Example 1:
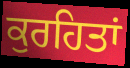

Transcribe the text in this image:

ਕੁਰਹਿਤਾਂ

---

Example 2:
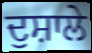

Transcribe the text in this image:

ਦੁਸ਼ਾਲੇ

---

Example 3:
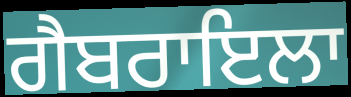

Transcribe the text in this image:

ਗੈਬਰਾਇਲਾ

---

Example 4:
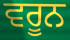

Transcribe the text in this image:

ਵਰੂਨ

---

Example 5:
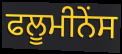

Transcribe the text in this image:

ਫਲੂਮੀਨੇਂਸ